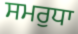
ਸਮਰੁਧਾ